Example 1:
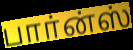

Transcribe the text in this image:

பார்ன்ஸ்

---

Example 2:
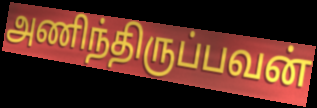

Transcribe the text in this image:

அணிந்திருப்பவன்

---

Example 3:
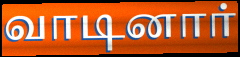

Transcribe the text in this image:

வாடினார்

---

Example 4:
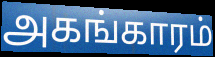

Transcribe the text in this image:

அகங்காரம்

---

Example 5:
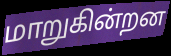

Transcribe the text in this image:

மாறுகின்றன